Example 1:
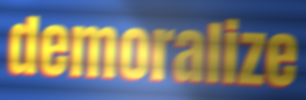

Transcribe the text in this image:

demoralize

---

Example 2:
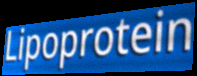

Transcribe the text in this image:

Lipoprotein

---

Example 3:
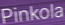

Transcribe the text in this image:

Pinkola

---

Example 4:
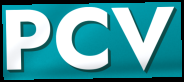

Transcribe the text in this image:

PCV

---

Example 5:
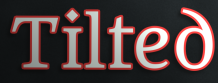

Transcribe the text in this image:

Tilted